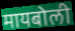
मायबोली